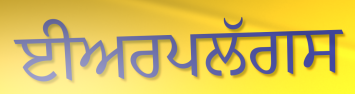
ਈਅਰਪਲੱਗਸ